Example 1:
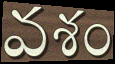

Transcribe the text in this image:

వశం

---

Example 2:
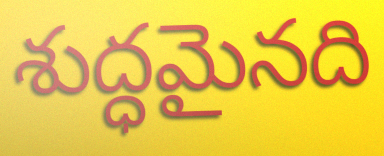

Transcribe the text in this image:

శుద్ధమైనది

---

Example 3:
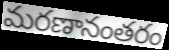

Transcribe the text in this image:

మరణానంతరం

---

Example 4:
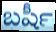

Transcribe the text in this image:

బషీర్‍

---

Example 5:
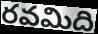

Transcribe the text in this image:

రవమిది